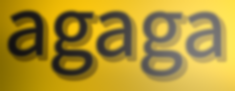
agaga